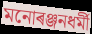
মনোৰঞ্জনধৰ্মী